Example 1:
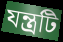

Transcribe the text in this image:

যন্ত্রটি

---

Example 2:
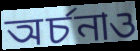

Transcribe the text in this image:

অর্চনাও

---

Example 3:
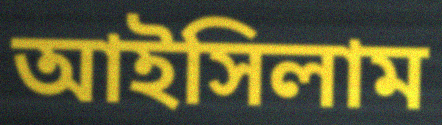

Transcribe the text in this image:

আইসিলাম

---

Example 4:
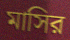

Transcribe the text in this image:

মাসির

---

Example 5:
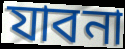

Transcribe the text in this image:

যাবনা